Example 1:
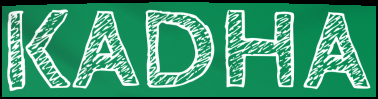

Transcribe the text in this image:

KADHA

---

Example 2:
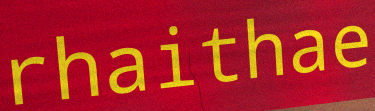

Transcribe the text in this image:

rhaithae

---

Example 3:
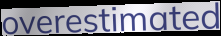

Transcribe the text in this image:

overestimated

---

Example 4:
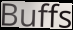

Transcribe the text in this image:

Buffs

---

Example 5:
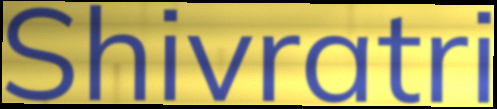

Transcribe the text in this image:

Shivratri